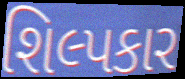
શિલ્પકાર